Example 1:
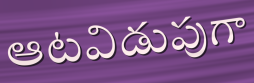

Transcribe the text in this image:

ఆటవిడుపుగా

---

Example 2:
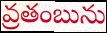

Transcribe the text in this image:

వ్రతంబును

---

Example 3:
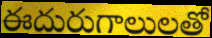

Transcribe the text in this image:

ఈదురుగాలులతో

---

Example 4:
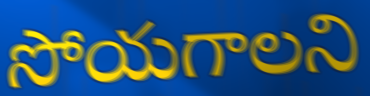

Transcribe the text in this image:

సోయగాలని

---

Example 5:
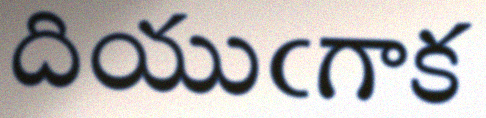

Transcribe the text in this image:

దియుఁగాక